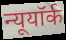
न्यूयॉर्क